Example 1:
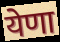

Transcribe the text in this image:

येणा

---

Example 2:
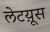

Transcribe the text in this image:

लेटय़ूस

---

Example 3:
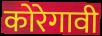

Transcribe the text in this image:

कोरेगावी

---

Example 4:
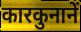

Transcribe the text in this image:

कारकुनानें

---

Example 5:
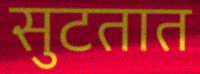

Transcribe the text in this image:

सुटतात